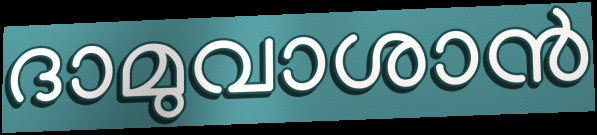
ദാമുവാശാൻ